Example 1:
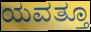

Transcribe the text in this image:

ಯವತ್ತೂ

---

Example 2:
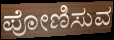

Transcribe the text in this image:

ಪೋಣಿಸುವ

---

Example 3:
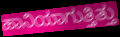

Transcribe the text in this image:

ಹಾನಿಯಾಗುತ್ತಿತ್ತು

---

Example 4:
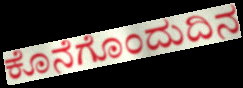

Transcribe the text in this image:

ಕೊನೆಗೊಂದುದಿನ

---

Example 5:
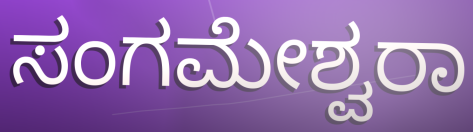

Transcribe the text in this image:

ಸಂಗಮೇಶ್ವರಾ